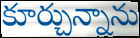
కూర్చున్నాను